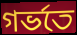
গৰ্ভতে